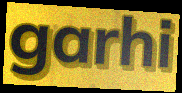
garhi